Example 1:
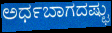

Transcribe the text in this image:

ಅರ್ಧಬಾಗದಷ್ಟು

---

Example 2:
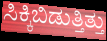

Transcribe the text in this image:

ಸಿಕ್ಕಿಬಿಡುತ್ತಿತ್ತು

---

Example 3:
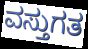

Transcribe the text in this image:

ವಸ್ತುಗತ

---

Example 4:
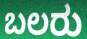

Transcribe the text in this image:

ಬಲರು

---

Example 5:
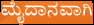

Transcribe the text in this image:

ಮೈದಾನವಾಗಿ